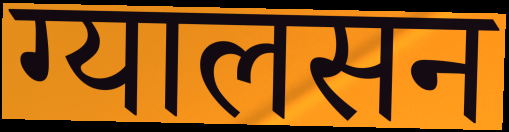
ग्यालसन